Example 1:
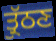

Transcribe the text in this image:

ਤ੍ਰੁੱਠਣ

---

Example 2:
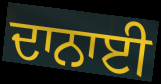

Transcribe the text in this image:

ਦਾਨਾਈ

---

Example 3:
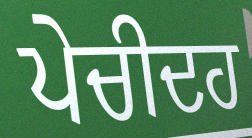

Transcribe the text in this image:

ਪੇਚੀਦਹ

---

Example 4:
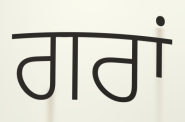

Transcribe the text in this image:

ਗਰਾਂ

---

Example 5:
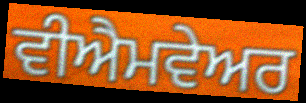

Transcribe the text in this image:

ਵੀਐਮਵੇਅਰ